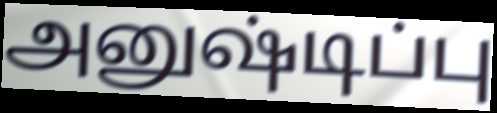
அனுஷ்டிப்பு